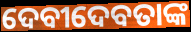
ଦେବୀଦେବତାଙ୍କ